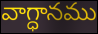
వాగ్ధానము